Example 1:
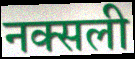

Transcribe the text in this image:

नक्सली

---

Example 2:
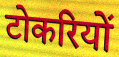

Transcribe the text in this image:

टोकरियों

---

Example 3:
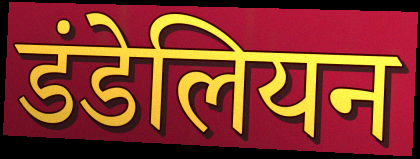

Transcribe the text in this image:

डंडेलियन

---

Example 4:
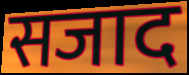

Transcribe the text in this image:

सजाद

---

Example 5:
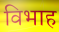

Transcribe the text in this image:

विभाह